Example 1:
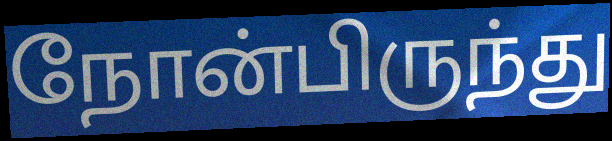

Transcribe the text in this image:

நோன்பிருந்து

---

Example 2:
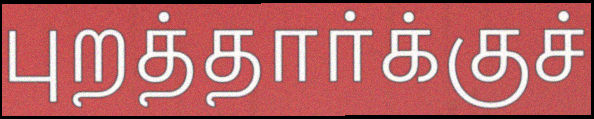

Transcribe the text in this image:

புறத்தார்க்குச்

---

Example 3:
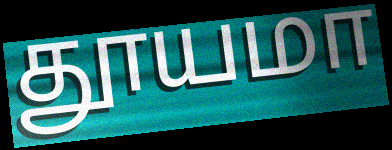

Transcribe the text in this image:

தூயமா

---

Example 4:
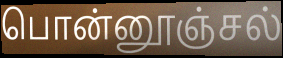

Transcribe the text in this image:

பொன்னூஞ்சல்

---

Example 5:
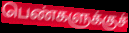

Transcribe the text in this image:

பெண்களுக்குச்